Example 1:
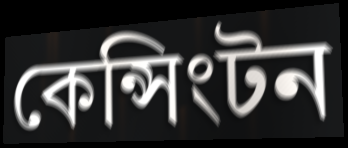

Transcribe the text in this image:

কেন্সিংটন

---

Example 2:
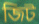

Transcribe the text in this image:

জিট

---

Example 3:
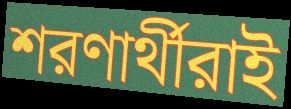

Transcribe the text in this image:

শরণার্থীরাই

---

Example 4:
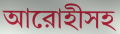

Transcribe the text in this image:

আরোহীসহ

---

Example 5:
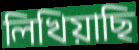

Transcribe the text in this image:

লিখিয়াছি